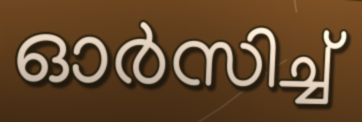
ഓർസിച്ച്